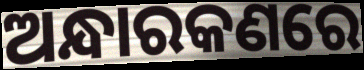
ଅନ୍ଧାରକଣରେ